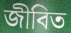
জীবিত